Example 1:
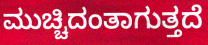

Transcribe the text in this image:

ಮುಚ್ಚಿದಂತಾಗುತ್ತದೆ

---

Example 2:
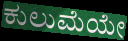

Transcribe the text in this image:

ಕುಲುಮೆಯೇ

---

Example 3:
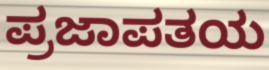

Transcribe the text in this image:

ಪ್ರಜಾಪತಯ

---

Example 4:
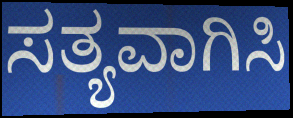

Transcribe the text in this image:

ಸತ್ಯವಾಗಿಸಿ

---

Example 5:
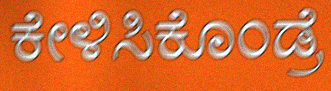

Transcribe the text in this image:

ಕೇಳಿಸಿಕೊಂಡ್ರೆ